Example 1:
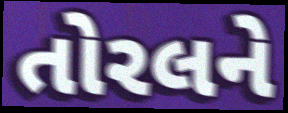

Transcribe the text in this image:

તોરલને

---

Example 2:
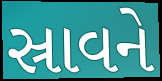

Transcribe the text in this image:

સ્રાવને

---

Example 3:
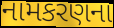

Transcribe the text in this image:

નામકરણના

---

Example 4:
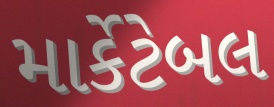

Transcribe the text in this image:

માર્કેટેબલ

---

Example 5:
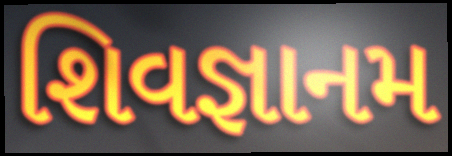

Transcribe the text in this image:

શિવજ્ઞાનમ